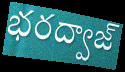
భరద్వాజ్